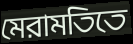
মেরামতিতে